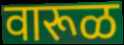
वारूळ